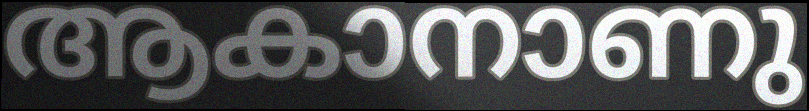
ആകാനാണു